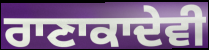
ਰਾਣਾਕਾਦੇਵੀ